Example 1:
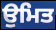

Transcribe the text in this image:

ਉਮਿਤ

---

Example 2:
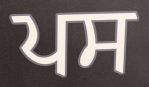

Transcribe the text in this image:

ਪਸ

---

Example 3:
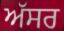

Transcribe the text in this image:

ਅੱਸਰ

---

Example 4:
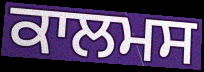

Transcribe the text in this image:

ਕਾਲਮਸ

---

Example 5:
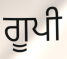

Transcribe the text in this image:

ਗੂਪੀ